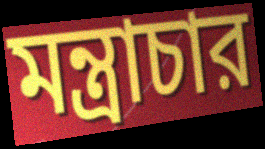
মন্ত্রাচার